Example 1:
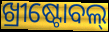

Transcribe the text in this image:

ଖ୍ରୀଷ୍ଟୋବଲ୍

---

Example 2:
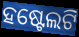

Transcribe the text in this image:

ହଷ୍ଟେଲଟି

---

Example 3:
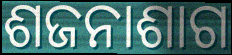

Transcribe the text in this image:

ଶଜନାଶାଗ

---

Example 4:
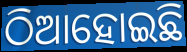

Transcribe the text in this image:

ଠିଆହୋଇଛି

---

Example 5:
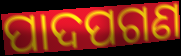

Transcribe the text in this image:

ପାଦପଗଣ